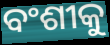
ବଂଶୀକୁ